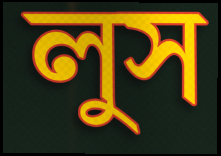
লুস